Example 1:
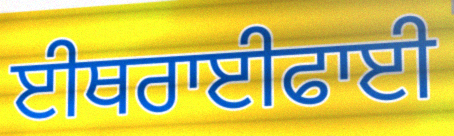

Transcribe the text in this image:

ਈਥਰਾਈਫਾਈ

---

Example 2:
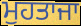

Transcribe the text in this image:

ਮੁਹਤਾਜਾ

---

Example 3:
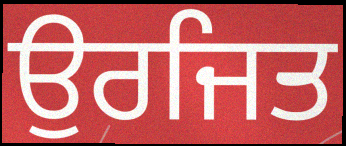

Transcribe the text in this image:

ਉਰਜਿਤ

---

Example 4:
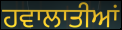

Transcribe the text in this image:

ਹਵਾਲਾਤੀਆਂ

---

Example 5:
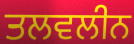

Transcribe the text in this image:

ਤਲਵਲੀਨ